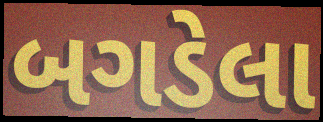
બગડેલા